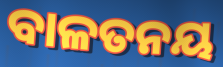
ବାଳତନୟ